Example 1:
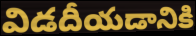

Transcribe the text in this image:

విడదీయడానికి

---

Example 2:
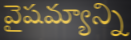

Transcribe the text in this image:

వైషమ్యాన్ని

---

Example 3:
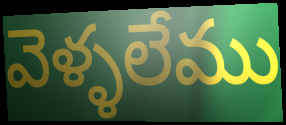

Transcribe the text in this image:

వెళ్ళలేము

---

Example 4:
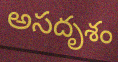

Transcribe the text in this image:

అసదృశం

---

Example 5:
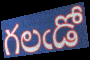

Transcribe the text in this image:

గలఁడో